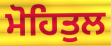
ਮੋਹਿਤੁਲ